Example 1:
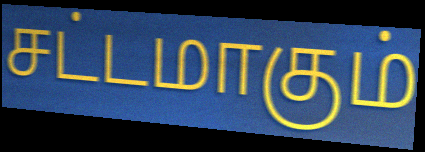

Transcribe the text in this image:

சட்டமாகும்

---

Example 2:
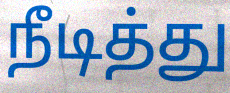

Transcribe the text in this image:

நீடித்து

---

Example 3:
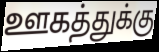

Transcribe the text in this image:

ஊகத்துக்கு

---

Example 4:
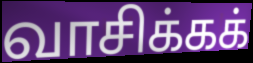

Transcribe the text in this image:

வாசிக்கக்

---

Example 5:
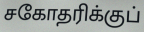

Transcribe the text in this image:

சகோதரிக்குப்